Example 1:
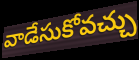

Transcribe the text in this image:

వాడేసుకోవచ్చు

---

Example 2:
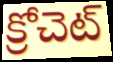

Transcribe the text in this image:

క్రోచెట్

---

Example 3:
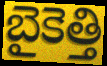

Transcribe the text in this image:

బైకెత్తి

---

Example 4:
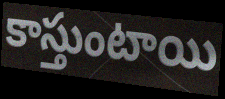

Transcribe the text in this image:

కాస్తుంటాయి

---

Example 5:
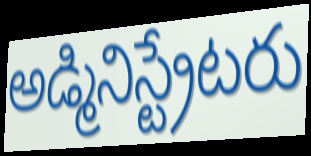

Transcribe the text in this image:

అడ్మినిస్ట్రేటరు